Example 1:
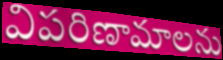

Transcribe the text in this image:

విపరిణామాలను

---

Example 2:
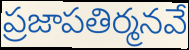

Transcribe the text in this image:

ప్రజాపతిర్మనవే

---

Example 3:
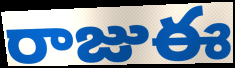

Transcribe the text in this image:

రాజుఈ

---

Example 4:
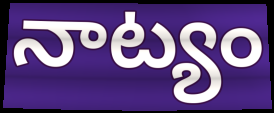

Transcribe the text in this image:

నాట్యం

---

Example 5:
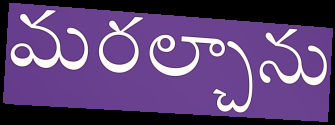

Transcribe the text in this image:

మరల్చాను